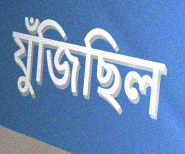
যুঁজিছিল